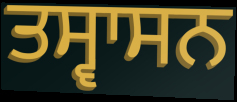
ਤਸ੍ਵਾਸਨ